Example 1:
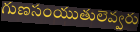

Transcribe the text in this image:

గుణసంయుతులెవ్వరు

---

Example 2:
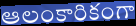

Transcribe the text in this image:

ఆలంకారికంగా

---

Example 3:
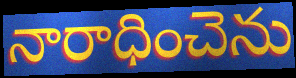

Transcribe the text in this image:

నారాధించెను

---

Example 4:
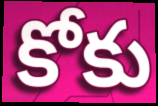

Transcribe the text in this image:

కోకు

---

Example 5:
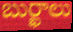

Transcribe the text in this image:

బుర్ఖాలు